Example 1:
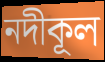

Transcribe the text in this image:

নদীকূল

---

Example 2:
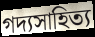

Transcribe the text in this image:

গদ্যসাহিত্য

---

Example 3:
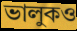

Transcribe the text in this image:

ভালুকও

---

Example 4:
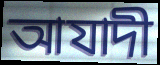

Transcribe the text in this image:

আযাদী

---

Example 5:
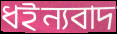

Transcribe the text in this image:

ধইন্যবাদ